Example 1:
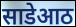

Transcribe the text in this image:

साडेआठ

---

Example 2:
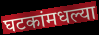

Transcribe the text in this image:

घटकांमधल्या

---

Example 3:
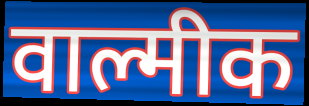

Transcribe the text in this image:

वाल्मीक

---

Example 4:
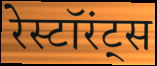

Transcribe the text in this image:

रेस्टॉरंट्‌स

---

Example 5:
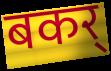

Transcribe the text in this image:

बकर्